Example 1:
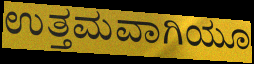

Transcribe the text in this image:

ಉತ್ತಮವಾಗಿಯೂ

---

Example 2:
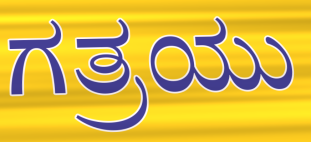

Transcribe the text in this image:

ಗತ್ರಯು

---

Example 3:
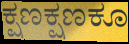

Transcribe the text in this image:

ಕ್ಷಣಕ್ಷಣಕೂ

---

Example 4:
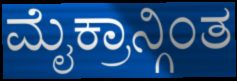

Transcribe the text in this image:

ಮೈಕ್ರಾನ್ಗಿಂತ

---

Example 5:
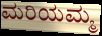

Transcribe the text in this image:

ಮರಿಯಮ್ಮ